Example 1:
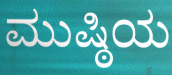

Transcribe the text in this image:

ಮುಷ್ಠಿಯ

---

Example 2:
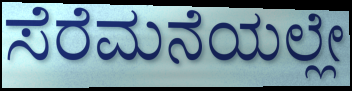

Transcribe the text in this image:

ಸೆರೆಮನೆಯಲ್ಲೇ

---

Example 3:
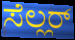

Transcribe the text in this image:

ಸೆಲ್ಲರ್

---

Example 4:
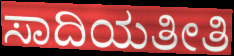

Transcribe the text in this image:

ಸಾದಿಯತೀತಿ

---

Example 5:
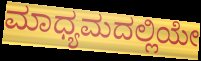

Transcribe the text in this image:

ಮಾಧ್ಯಮದಲ್ಲಿಯೇ